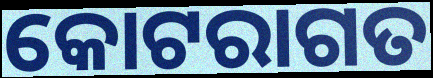
କୋଟରାଗତ